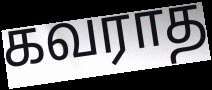
கவராத